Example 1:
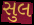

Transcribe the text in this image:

સુલ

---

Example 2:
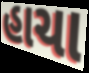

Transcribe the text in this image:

હાચા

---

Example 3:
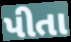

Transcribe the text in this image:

પીતા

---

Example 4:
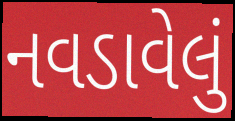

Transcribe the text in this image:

નવડાવેલું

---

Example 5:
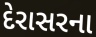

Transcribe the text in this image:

દેરાસરના